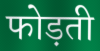
फोड़ती